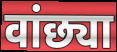
वांछ्या